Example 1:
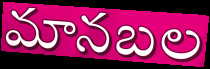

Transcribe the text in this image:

మానబల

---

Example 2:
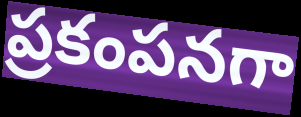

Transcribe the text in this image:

ప్రకంపనగా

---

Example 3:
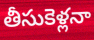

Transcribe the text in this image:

తీసుకెళ్లనా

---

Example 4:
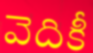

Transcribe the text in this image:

వెదికీ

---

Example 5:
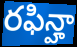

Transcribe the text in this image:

రఫిన్హా